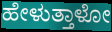
ಹೇಳುತ್ತಾಳೋ